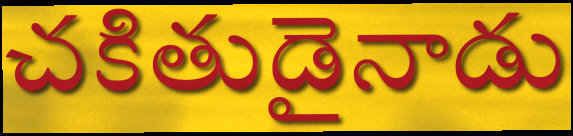
చకితుడైనాడు